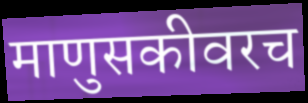
माणुसकीवरच